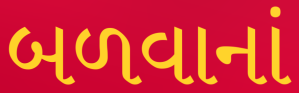
બળવાનાં